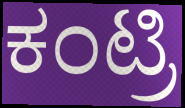
ಕಂಟ್ರಿ